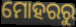
ମୋହରରୁ